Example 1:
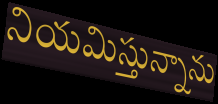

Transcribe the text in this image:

నియమిస్తున్నాను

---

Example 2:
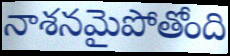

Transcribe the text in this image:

నాశనమైపోతోంది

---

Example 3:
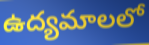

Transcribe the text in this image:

ఉద్యమాలలో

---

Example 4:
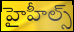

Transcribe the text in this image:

హైహీల్స్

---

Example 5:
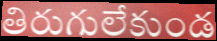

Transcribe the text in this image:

తిరుగులేకుండ